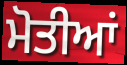
ਮੋਤੀਆਂ